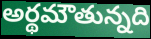
అర్థమౌతున్నది